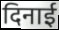
दिनाई